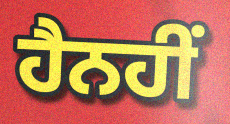
ਹੈਨਹੀਂ